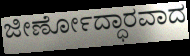
ಜೀರ್ಣೋದ್ಧಾರವಾದ